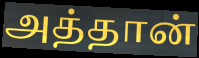
அத்தான்